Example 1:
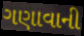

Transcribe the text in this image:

ગણાવાની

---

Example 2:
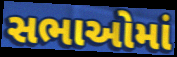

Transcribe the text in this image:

સભાઓમાં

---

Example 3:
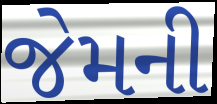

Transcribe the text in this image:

જેમની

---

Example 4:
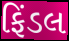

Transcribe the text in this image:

ફિંડલ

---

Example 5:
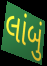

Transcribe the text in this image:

લાંબું